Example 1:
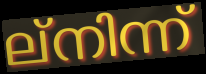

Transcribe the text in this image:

ല്നിന്ന്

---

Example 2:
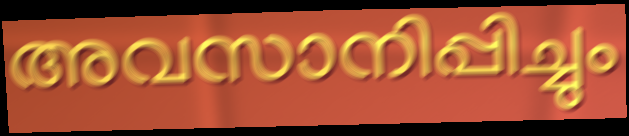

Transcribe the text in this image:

അവസാനിപ്പിച്ചും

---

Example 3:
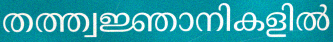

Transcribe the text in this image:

തത്ത്വജ്ഞാനികളിൽ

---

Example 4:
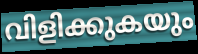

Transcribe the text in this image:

വിളിക്കുകയും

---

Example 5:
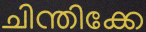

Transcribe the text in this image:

ചിന്തിക്കേ